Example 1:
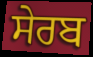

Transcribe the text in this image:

ਸੇਰਬ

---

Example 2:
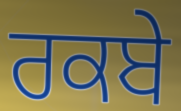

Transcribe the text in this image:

ਰਕਬੇ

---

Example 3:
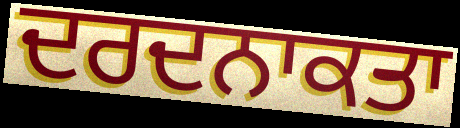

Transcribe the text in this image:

ਦਰਦਨਾਕਤਾ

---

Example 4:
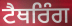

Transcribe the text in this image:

ਟੈਥਰਿੰਗ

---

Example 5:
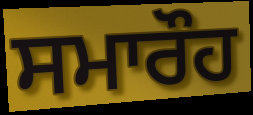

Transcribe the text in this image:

ਸਮਾਰੌਹ